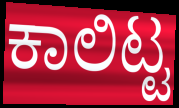
ಕಾಲಿಟ್ಟ